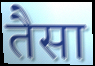
तैसा